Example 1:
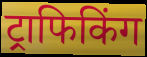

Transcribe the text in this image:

ट्राफिकिंग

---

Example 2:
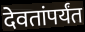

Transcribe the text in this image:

देवतांपर्यंत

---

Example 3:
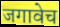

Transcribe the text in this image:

जगावेच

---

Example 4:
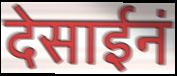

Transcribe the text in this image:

देसाईनं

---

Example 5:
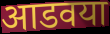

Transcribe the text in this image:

आडवया